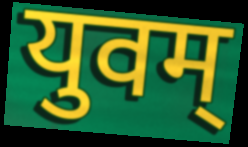
युवम्